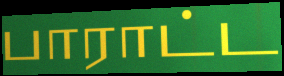
பாராட்ட